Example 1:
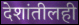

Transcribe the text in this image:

देशांतीलही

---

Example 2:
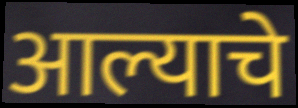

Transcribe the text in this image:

आल्याचे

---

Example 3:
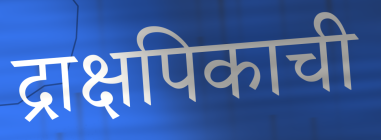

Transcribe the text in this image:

द्राक्षपिकाची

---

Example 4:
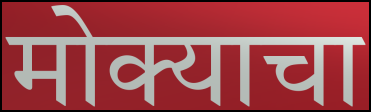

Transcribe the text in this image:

मोक्याचा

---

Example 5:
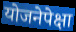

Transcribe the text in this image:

योजनेपेक्षा